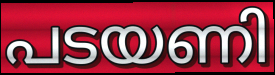
പടയണി